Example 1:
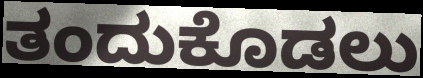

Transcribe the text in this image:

ತಂದುಕೊಡಲು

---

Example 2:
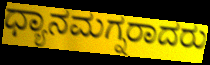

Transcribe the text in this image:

ಧ್ಯಾನಮಗ್ನರಾದರು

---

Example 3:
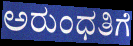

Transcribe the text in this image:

ಅರುಂಧತಿಗೆ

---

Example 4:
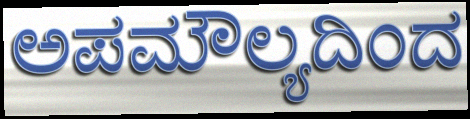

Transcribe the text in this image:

ಅಪಮೌಲ್ಯದಿಂದ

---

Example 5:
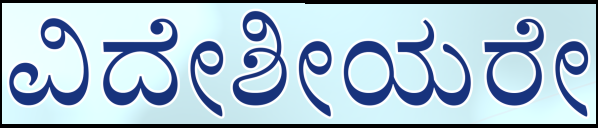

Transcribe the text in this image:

ವಿದೇಶೀಯರೇ